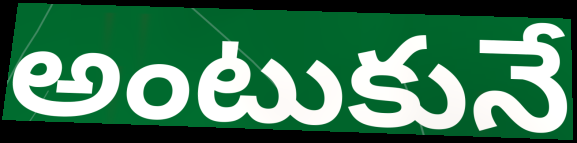
అంటుకునే